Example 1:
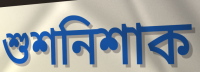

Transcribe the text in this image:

শুশনিশাক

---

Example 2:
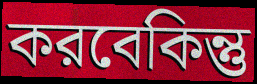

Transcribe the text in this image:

করবেকিন্তু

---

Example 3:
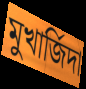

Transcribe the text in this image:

মুখার্জিদা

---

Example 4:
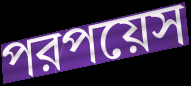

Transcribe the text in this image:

পরপয়েস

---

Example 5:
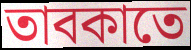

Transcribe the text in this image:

তাবকাতে